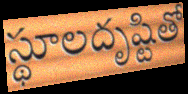
స్థూలదృష్టితో